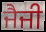
ਜੈਜੀ